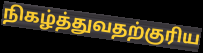
நிகழ்த்துவதற்குரிய